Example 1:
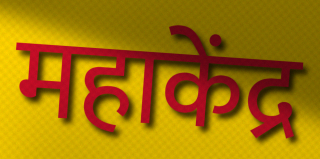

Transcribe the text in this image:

महाकेंद्र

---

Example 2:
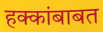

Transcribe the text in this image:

हक्कांबाबत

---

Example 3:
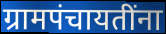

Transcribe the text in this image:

ग्रामपंचायतींना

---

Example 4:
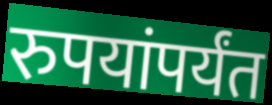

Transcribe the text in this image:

रुपयांपर्यंत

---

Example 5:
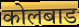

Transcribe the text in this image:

कोलबाड